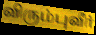
விரும்புவீர்